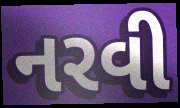
નરવી